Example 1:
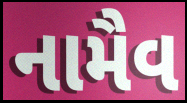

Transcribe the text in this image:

નામૈવ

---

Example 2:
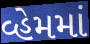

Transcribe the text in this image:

વ્હેમમાં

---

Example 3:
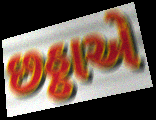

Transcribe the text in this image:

છઠ્ઠાએ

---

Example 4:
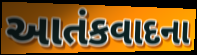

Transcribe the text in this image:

આતંકવાદના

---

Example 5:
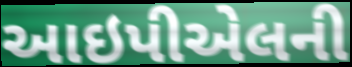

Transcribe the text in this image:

આઇપીએલની